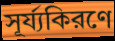
সূর্য্যকিরণে